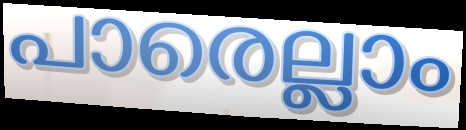
പാരെല്ലാം